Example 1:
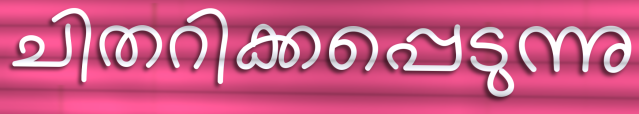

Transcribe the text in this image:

ചിതറിക്കപ്പെടുന്നു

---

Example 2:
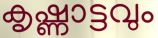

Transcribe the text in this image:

കൃഷ്ണാട്ടവും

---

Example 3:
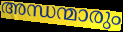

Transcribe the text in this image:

അന്ധന്മാരും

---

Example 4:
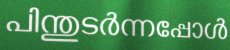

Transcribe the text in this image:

പിന്തുടർന്നപ്പോൾ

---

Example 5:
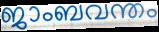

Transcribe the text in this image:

ജാംബവന്തം